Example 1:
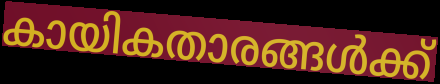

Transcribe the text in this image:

കായികതാരങ്ങൾക്ക്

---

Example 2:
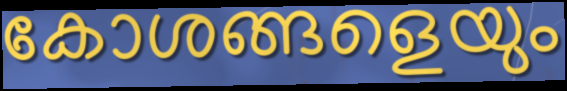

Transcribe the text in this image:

കോശങ്ങളെയും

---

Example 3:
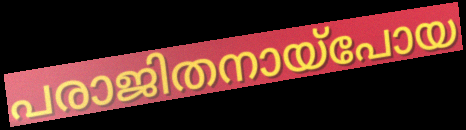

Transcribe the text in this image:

പരാജിതനായ്പോയ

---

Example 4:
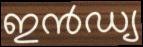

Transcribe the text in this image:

ഇൻഡ്യ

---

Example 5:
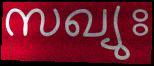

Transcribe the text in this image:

സഖ്യുഃ